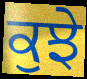
ਕੁਝੇ